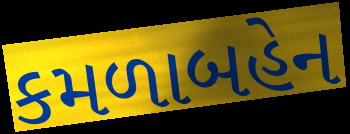
કમળાબહેન